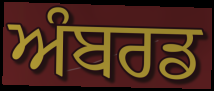
ਅੰਬਰਡ